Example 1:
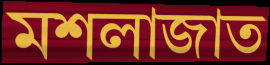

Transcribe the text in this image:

মশলাজাত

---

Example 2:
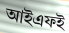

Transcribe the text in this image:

আইএফই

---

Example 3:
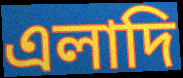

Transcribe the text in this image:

এলাদি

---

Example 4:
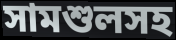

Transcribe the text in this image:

সামশুলসহ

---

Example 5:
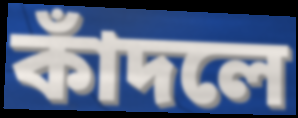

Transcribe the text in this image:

কাঁদলে